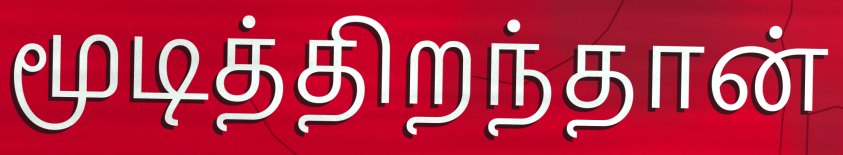
மூடித்திறந்தான்